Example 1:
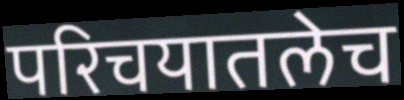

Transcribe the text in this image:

परिचयातलेच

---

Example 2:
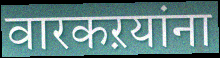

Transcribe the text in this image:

वारकऱयांना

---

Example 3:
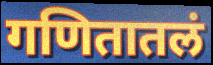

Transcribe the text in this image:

गणितातलं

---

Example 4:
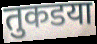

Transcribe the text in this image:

तुकडया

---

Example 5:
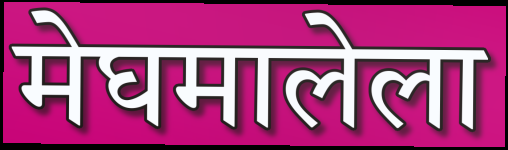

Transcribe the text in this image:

मेघमालेला